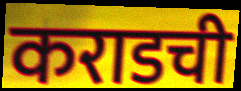
कराडची